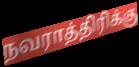
நவராத்திரிக்கு